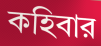
কহিবার